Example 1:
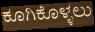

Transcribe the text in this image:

ಕೂಗಿಕೊಳ್ಳಲು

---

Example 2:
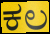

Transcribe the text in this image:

ಕಲ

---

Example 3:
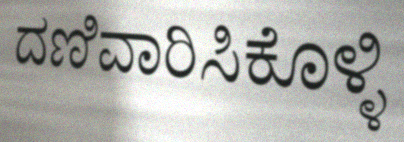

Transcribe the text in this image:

ದಣಿವಾರಿಸಿಕೊಳ್ಳಿ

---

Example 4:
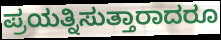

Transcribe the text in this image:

ಪ್ರಯತ್ನಿಸುತ್ತಾರಾದರೂ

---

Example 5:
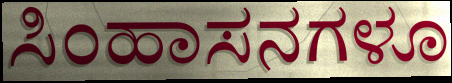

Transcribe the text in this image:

ಸಿಂಹಾಸನಗಳೂ